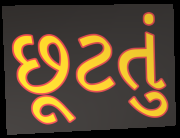
છૂટતું